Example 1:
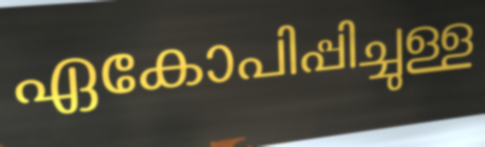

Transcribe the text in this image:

ഏകോപിപ്പിച്ചുള്ള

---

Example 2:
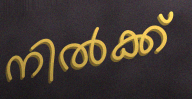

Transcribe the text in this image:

നിൽക്ക്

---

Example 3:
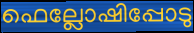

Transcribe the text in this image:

ഫെല്ലോഷിപ്പോടു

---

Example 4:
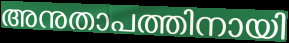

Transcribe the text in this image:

അനുതാപത്തിനായി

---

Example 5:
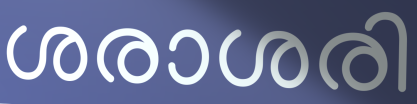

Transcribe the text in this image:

ശരാശരി